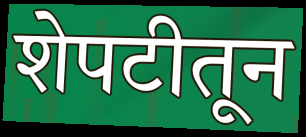
शेपटीतून